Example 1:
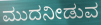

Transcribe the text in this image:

ಮುದನೀಡುವ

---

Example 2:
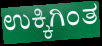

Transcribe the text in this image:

ಉಕ್ಕಿಗಿಂತ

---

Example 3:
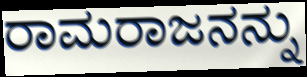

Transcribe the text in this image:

ರಾಮರಾಜನನ್ನು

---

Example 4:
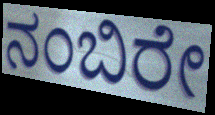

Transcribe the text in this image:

ನಂಬಿರೇ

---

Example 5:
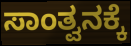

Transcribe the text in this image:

ಸಾಂತ್ವನಕ್ಕೆ